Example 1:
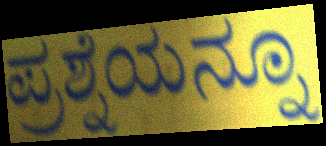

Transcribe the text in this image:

ಪ್ರಶ್ನೆಯನ್ನೂ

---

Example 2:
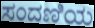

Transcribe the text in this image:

ಸಂದಣಿಯ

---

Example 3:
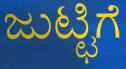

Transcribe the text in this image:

ಜುಟ್ಟಿಗೆ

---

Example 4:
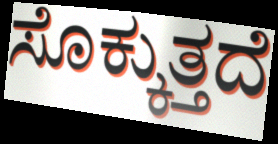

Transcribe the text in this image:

ಸೊಕ್ಕುತ್ತದೆ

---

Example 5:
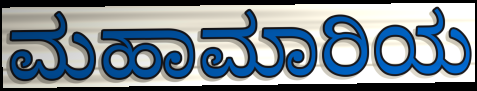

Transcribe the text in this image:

ಮಹಾಮಾರಿಯ